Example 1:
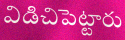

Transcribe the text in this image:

విడిచిపెట్టారు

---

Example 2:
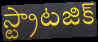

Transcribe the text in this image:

స్ట్రాటజిక్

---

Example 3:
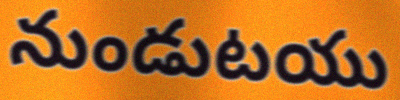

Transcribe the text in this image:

నుండుటయు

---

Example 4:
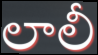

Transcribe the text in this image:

లాలీ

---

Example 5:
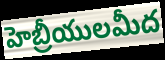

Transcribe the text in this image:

హెబ్రీయులమీద